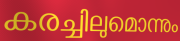
കരച്ചിലുമൊന്നും